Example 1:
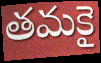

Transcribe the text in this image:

తమకై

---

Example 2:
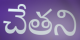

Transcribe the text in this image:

చేతని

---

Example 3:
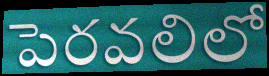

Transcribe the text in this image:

పెరవలిలో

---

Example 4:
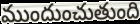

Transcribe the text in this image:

ముందుంచుతుంది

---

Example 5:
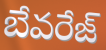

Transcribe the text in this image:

బేవరేజ్